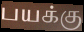
பயக்கு